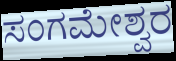
ಸಂಗಮೇಶ್ವರ